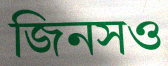
জিনসও